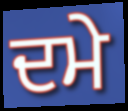
ਦਮੇ